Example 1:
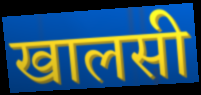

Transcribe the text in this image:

खालसी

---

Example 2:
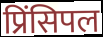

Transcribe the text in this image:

प्रिंसिपल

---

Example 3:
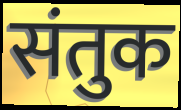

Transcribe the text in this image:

संतुक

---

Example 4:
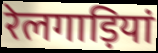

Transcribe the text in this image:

रेलगाड़ियां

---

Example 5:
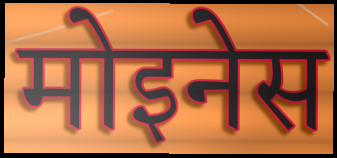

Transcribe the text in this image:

मोइनेस